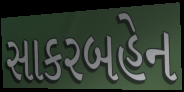
સાકરબહેન